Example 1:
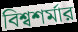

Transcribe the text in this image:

বিশ্বশর্মার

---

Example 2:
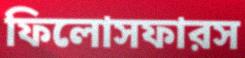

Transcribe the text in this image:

ফিলোসফারস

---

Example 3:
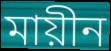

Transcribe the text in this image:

মায়ীন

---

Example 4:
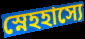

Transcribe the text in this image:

স্নেহহাস্যে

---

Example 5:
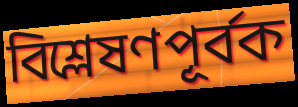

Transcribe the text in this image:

বিশ্লেষণপূর্বক